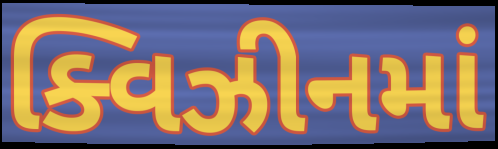
ક્વિઝીનમાં